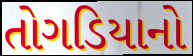
તોગડિયાનો